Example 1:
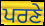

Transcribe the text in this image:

ਪਰਣੇ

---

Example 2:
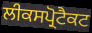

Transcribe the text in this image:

ਲੀਕਸਪ੍ਰੋਟੈਕਟ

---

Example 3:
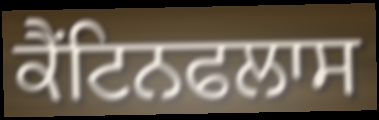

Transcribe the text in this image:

ਕੈਂਟਿਨਫਲਾਸ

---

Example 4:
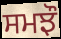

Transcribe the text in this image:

ਸਮਝੌ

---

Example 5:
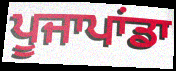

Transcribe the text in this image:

ਪੂਜਾਪਾਂਡਾ